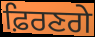
ਫ਼ਿਰਣਗੇ